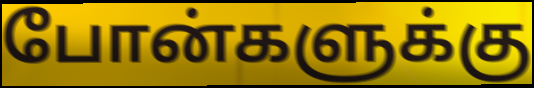
போன்களுக்கு